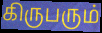
கிருபரும்